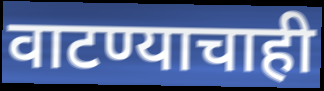
वाटण्याचाही